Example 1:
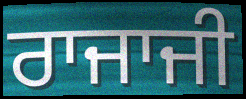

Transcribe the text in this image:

ਰਾਜਾਜੀ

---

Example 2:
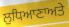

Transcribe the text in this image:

ਲੁਧਿਆਣਾਅਤੇ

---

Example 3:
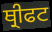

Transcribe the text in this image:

ਥ੍ਰੀਫਟ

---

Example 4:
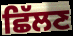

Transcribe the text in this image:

ਛਿੱਲਣ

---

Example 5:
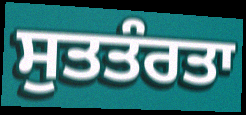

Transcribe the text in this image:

ਸੁਤਤੰਰਤਾ